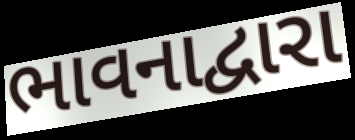
ભાવનાદ્વારા